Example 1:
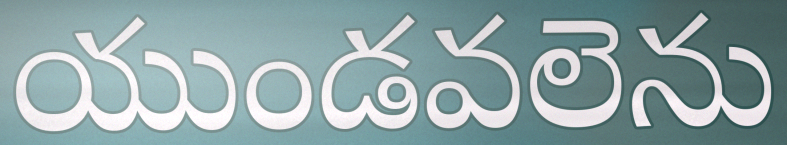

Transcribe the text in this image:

యుండవలెను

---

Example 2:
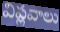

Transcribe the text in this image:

విప్లవాలు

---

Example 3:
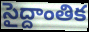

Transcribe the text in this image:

సైద్దాంతిక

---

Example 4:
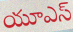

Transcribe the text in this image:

యూఎస్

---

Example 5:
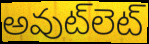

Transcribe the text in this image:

అవుట్‌లెట్